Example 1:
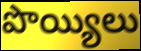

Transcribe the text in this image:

పొయ్యిలు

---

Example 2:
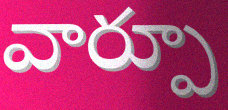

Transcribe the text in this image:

వార్పూ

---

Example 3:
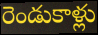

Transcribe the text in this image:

రెండుకాళ్లు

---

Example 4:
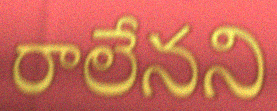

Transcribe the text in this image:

రాలేనని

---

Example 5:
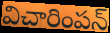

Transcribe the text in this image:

విచారింపన్